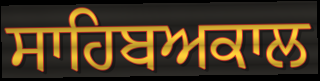
ਸਾਹਿਬਅਕਾਲ